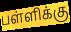
பள்ளிக்கு